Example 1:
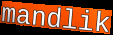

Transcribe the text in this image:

mandlik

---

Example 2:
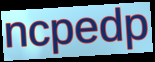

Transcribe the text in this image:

ncpedp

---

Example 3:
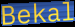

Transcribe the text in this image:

Bekal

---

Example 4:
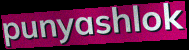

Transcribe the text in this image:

punyashlok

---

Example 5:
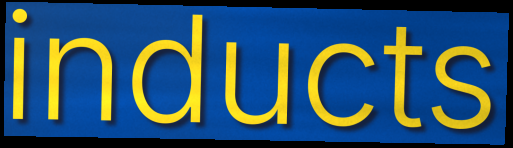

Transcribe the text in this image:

inducts